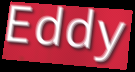
Eddy